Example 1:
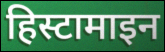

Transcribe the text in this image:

हिस्टामाइन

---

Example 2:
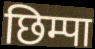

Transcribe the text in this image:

छिम्पा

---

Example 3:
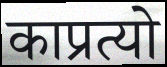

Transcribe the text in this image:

काप्रत्यो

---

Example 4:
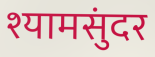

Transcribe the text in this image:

श्यामसुंदर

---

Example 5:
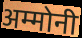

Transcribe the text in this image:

अम्मोनी